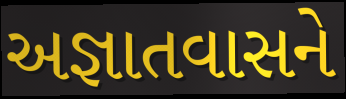
અજ્ઞાતવાસને